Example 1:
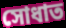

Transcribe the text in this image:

সোধাত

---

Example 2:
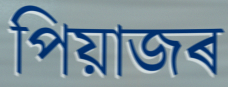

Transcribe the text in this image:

পিয়াজৰ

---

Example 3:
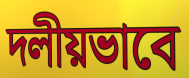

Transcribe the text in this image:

দলীয়ভাবে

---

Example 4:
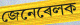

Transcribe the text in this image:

জেনেৰেলক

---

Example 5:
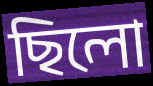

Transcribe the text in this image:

ছিলো